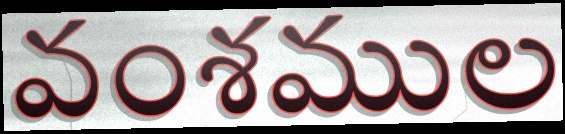
వంశముల